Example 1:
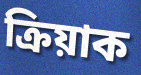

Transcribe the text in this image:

ক্ৰিয়াক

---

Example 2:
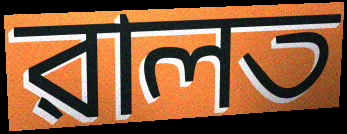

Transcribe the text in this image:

ৱালত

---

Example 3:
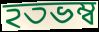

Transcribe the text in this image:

হতভম্ব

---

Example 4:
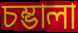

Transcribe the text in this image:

চম্ভালা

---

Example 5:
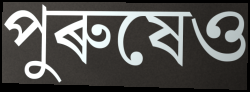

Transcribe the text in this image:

পুৰুষেও